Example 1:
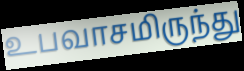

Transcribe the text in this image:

உபவாசமிருந்து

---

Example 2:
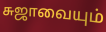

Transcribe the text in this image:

சுஜாவையும்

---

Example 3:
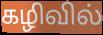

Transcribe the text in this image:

கழிவில்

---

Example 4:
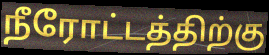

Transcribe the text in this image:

நீரோட்டத்திற்கு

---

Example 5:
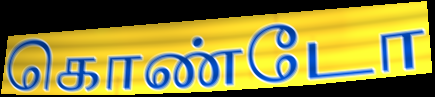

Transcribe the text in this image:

கொண்டோ